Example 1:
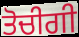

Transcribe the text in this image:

ਤੋਚੀਗੀ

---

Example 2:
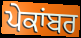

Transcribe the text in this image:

ਪੇਕਾਂਬਰ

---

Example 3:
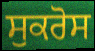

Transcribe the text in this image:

ਸੁਕਰੋਸ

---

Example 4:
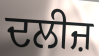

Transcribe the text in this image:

ਦਲੀਜ਼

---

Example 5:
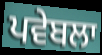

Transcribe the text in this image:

ਪਵੇਬਲਾ